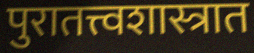
पुरातत्त्वशास्त्रात